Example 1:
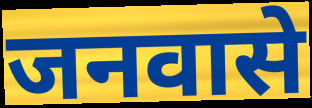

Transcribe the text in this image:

जनवासे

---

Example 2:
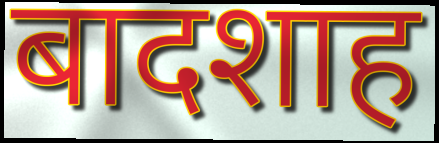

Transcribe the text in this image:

बादशाह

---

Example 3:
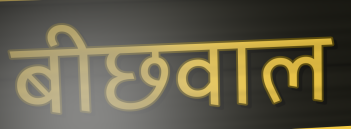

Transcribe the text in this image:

बीछवाल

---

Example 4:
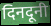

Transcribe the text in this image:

दिनदूनी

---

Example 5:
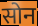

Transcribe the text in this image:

सोन